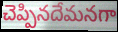
చెప్పినదేమనగా